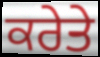
ਕਰੇਤੇ